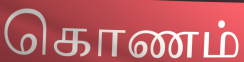
கொணம்